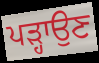
ਪੜ੍ਹਾਉਣ